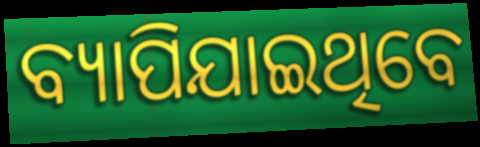
ବ୍ୟାପିଯାଇଥିବେ